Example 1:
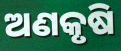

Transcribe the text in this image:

ଅଣକୃଷି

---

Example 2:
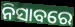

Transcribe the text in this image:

ନିସାବରେ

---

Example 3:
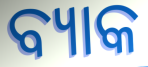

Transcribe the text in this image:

ବ୍ୟାକ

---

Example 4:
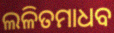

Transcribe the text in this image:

ଲଳିତମାଧବ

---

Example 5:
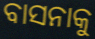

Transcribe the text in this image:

ବାସନାକୁ